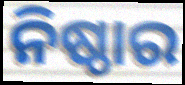
ନିଷ୍ଠାର